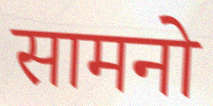
सामनो